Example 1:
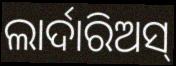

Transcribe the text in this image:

ଲାର୍ଦାରିଅସ୍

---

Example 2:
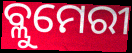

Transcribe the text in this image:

ବ୍ଲୁମେରୀ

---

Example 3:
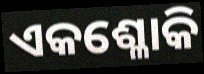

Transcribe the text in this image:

ଏକଶ୍ଳୋକି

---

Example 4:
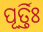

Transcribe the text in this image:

ପୂର୍ତ୍ତିଃ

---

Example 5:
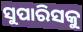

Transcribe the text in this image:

ସୁପାରିସକୁ